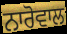
ਨਾਰੋਵਾਲ